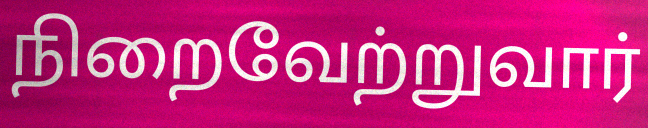
நிறைவேற்றுவார்